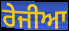
ਰੇਜੀਆ